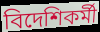
বিদেশিকর্মী